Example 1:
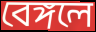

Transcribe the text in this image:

বেঙ্গলে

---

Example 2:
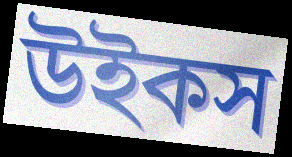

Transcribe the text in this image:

উইকস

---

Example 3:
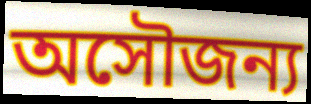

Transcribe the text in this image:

অসৌজন্য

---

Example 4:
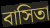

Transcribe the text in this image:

বাসিতা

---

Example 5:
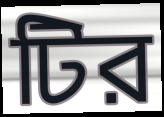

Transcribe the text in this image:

টির